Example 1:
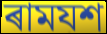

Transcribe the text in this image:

ৰামযশ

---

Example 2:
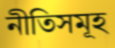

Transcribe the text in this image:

নীতিসমূহ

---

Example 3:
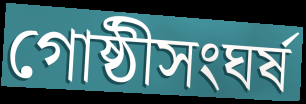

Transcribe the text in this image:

গোষ্ঠীসংঘৰ্ষ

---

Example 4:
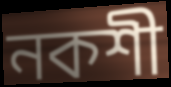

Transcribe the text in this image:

নকশী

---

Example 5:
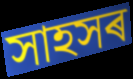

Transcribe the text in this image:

সাহসৰ